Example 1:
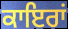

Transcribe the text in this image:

ਕਾਇਰਾਂ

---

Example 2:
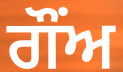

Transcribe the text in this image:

ਗੌਂਅ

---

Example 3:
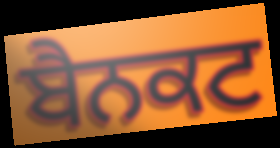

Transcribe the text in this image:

ਬੈਨਕਟ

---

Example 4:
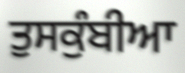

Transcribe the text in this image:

ਤੁਸਕੁੰਬੀਆ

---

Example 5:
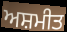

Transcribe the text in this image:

ਅਸ਼ਮੀਤ